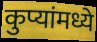
कुप्यांमध्ये